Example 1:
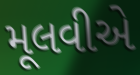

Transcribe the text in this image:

મૂલવીએ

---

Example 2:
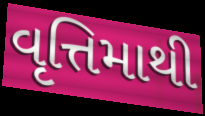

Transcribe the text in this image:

વૃત્તિમાથી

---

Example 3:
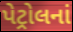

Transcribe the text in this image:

પેટ્રોલનાં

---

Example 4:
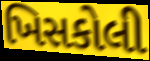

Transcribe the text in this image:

ખિસકોલી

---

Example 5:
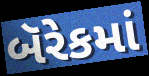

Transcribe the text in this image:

બૅરેકમાં